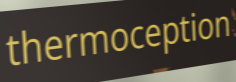
thermoception